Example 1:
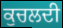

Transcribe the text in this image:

ਕੁਚਲਦੀ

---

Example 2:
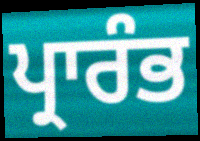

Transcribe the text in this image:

ਪ੍ਰਾਰੰਭ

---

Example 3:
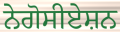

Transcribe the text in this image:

ਨੇਗੋਸੀਏਸ਼ਨ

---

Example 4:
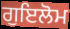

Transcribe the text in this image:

ਗੁਇਲੋਮ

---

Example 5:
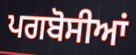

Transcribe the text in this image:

ਪਗਬੋਸੀਆਂ